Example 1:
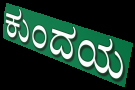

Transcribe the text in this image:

ಕುಂದಯ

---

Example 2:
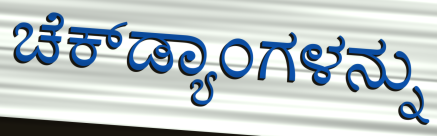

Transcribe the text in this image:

ಚೆಕ್‌ಡ್ಯಾಂಗಳನ್ನು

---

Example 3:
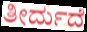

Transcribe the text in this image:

ತೀರ್ದುದೆ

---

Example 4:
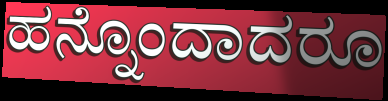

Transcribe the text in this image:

ಹನ್ನೊಂದಾದರೂ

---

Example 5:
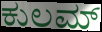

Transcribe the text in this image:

ಕುಲಮ್